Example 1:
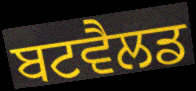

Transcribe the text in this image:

ਬਟਵੈਲਡ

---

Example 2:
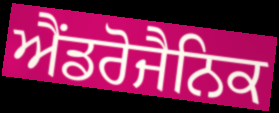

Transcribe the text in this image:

ਐਂਡਰੋਜੈਨਿਕ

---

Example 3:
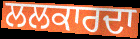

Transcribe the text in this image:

ਲਲਕਾਰਦਾ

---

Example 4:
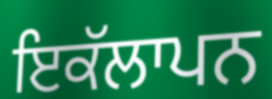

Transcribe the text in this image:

ਇਕੱਲਾਪਨ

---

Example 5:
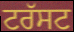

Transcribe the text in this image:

ਟਰੱਸਟ